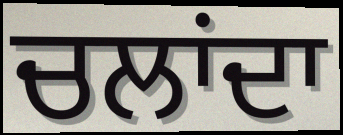
ਚਲਾਂਦਾ